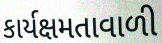
કાર્યક્ષમતાવાળી